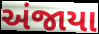
અંજાયા